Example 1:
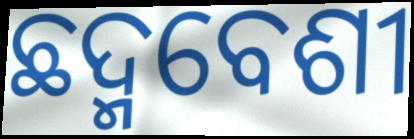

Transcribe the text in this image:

ଛଦ୍ମବେଶୀ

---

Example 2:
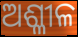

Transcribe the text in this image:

ଅଶ୍ଳୀଳ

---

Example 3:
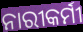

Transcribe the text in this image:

ନାରୀକର୍ମୀ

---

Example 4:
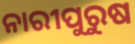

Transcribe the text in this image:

ନାରୀପୁରୁଷ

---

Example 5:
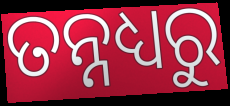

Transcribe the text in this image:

ତନ୍ନଧ୍ୟରୁ